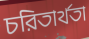
চরিতার্থতা